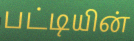
பட்டியின்